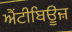
ਐਂਟੀਬਿਊਜ਼